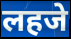
लहजे